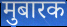
मुबारक